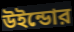
উইন্ডোর